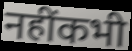
नहींकभी